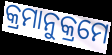
କ୍ରମାନୁକ୍ରମେ